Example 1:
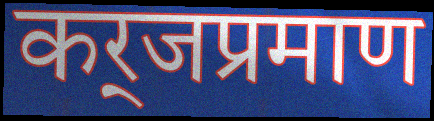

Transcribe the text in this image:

कर्जप्रमाण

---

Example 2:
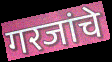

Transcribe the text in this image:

गरजांचे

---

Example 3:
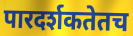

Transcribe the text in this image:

पारदर्शकतेतच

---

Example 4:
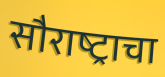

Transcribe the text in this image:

सौराष्ट्राचा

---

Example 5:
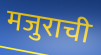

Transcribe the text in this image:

मजुराची